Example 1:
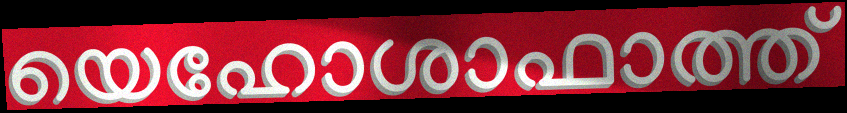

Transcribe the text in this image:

യെഹോശാഫാത്ത്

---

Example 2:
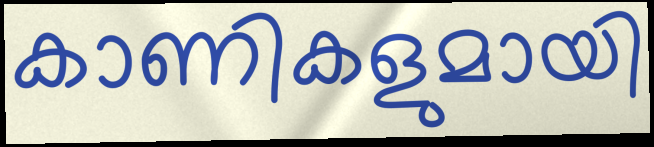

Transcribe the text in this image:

കാണികളുമായി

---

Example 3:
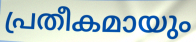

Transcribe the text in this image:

പ്രതീകമായും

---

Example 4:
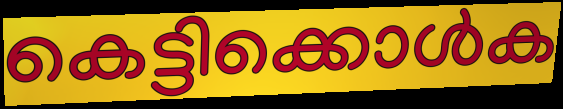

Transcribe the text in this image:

കെട്ടിക്കൊൾക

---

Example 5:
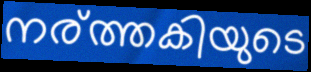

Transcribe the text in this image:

നര്ത്തകിയുടെ